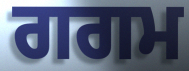
ਗਗਮ